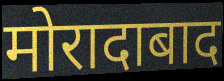
मोरादाबाद